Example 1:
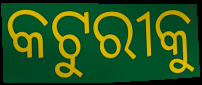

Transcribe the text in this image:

କଟୁରୀକୁ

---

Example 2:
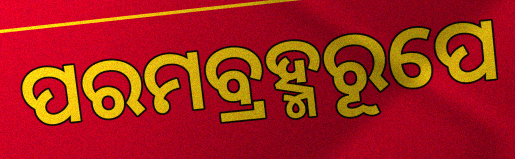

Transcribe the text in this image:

ପରମବ୍ରହ୍ମରୂପେ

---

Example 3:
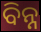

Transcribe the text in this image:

ବିନ୍ନ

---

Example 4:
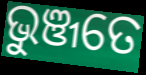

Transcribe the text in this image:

ଭୁଞ୍ଜତେ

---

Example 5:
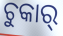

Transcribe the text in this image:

ଚୁକାର୍